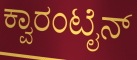
ಕ್ವಾರಂಟೈನ್